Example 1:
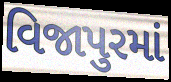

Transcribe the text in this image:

વિજાપુરમાં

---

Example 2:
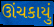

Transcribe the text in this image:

ઊંચકાયું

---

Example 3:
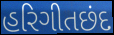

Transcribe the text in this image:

હરિગીતછંદ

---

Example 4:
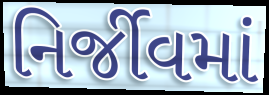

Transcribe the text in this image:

નિર્જીવમાં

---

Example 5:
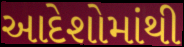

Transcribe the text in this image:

આદેશોમાંથી